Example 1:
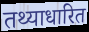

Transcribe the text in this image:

तथ्याधारित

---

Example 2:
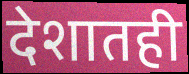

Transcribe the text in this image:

देशातही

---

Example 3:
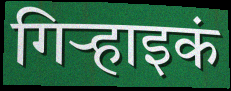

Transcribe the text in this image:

गिऱ्हाइकं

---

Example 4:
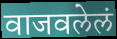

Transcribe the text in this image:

वाजवलेलं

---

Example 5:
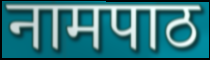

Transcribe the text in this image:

नामपाठ